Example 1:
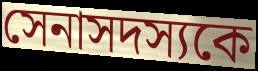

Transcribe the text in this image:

সেনাসদস্যকে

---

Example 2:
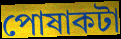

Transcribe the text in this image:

পোষাকটা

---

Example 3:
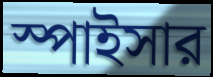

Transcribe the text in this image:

স্পাইসার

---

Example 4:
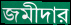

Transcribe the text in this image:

জমীদার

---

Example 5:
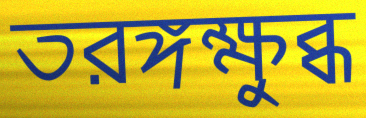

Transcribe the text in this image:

তরঙ্গক্ষুব্ধ